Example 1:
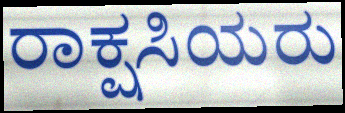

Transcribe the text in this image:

ರಾಕ್ಷಸಿಯರು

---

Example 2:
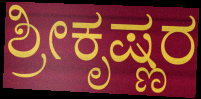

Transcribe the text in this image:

ಶ್ರೀಕೃಷ್ಣರ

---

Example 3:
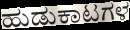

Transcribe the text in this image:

ಹುಡುಕಾಟಗಳ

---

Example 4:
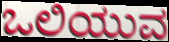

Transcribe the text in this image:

ಒಲಿಯುವ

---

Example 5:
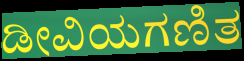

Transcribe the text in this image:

ಡೀವಿಯಗಣಿತ